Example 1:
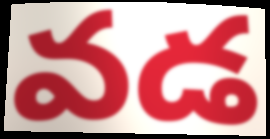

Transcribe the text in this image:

వడ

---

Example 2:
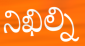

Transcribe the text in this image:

నిఖిల్ని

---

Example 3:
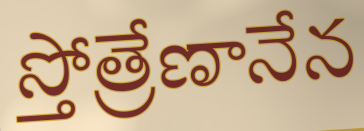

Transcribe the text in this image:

స్తోత్రేణానేన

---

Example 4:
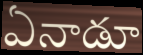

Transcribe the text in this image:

ఏనాడూ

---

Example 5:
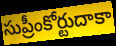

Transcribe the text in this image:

సుప్రీంకోర్టుదాకా